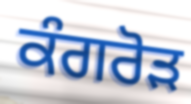
ਕੰਗਰੋੜ